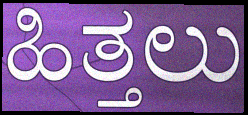
ಹಿತ್ತಲು